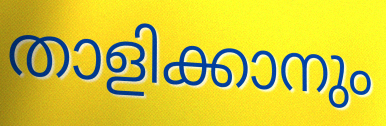
താളിക്കാനും